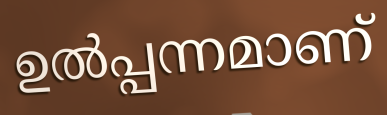
ഉൽപ്പന്നമാണ്